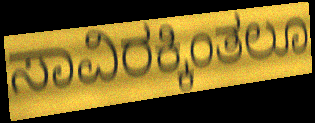
ಸಾವಿರಕ್ಕಿಂತಲೂ